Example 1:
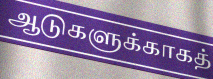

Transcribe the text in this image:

ஆடுகளுக்காகத்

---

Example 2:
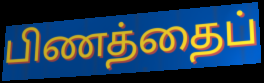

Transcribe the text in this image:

பிணத்தைப்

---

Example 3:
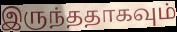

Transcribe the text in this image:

இருந்ததாகவும்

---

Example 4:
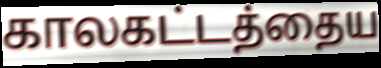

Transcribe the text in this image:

காலகட்டத்தைய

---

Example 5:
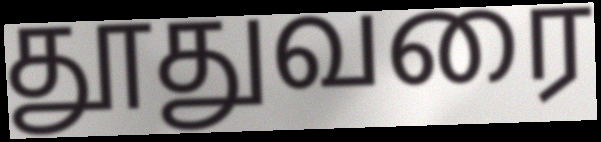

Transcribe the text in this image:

தூதுவரை